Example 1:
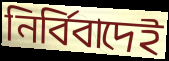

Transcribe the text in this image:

নির্বিবাদেই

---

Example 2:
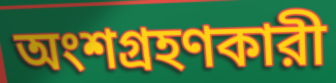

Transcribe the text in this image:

অংশগ্রহণকারী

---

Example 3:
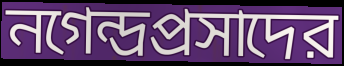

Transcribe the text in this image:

নগেন্দ্রপ্রসাদের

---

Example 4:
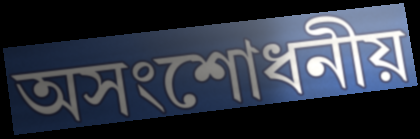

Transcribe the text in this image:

অসংশোধনীয়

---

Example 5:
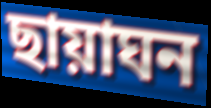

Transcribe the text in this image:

ছায়াঘন